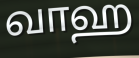
வாஹ